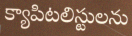
క్యాపిటలిస్టులను